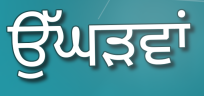
ਉੱਘੜਵਾਂ